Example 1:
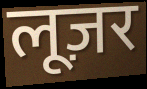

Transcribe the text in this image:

लूज़र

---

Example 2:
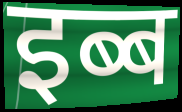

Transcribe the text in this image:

इब्ब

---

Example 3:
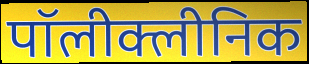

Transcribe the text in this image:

पॉलीक्लीनिक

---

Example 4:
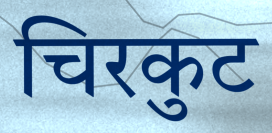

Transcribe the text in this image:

चिरकुट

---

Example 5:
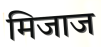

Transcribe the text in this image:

मिजाज